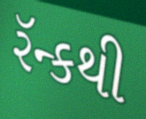
રૅન્કથી